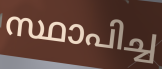
സ്ഥാപിച്ച